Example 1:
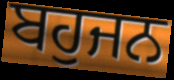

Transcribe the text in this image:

ਬਹੁਜਨ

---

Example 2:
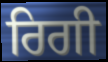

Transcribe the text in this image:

ਰਿਗੀ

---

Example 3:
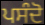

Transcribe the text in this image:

ਪਸੰਦੋ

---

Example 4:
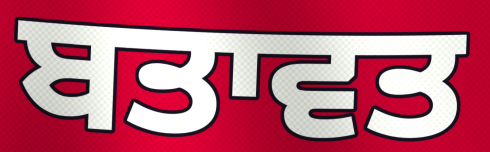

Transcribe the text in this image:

ਬਤਾਵਤ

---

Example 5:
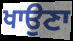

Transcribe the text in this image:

ਖਾਉਣਾ